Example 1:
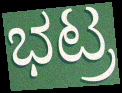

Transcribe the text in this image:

ಭಟ್ರ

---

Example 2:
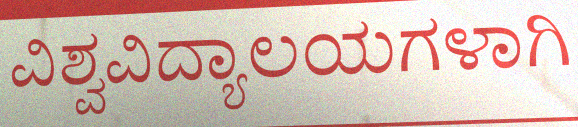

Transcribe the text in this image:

ವಿಶ್ವವಿದ್ಯಾಲಯಗಳಾಗಿ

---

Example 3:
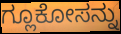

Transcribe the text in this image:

ಗ್ಲೂಕೋಸನ್ನು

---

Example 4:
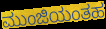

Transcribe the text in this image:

ಮುಂಜಿಯಂತಹ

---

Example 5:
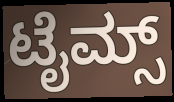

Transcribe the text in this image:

ಟೈಮ್ಸ್